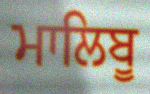
ਮਾਲਿਬੂ